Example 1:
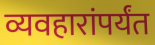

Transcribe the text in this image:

व्यवहारांपर्यंत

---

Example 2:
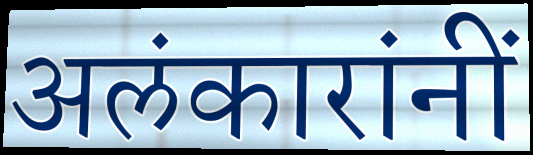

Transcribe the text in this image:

अलंकारांनीं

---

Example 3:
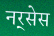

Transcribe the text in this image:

नर्सेस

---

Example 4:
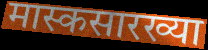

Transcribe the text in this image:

मास्कसारख्या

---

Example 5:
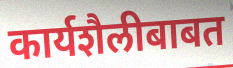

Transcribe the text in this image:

कार्यशैलीबाबत